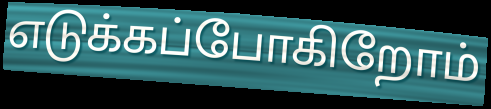
எடுக்கப்போகிறோம்